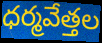
ధర్మవేత్తల